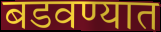
बडवण्यात